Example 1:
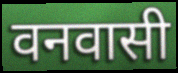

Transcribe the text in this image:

वनवासी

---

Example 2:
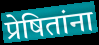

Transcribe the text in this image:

प्रेषितांना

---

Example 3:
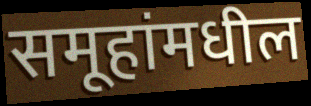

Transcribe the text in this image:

समूहांमधील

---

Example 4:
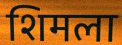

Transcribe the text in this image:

शिमला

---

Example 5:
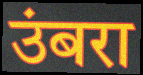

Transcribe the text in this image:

उंबरा